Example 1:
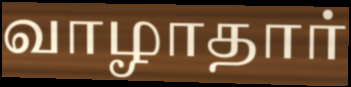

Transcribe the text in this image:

வாழாதார்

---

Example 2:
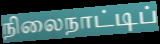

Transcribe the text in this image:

நிலைநாட்டிப்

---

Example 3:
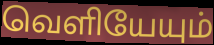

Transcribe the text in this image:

வெளியேயும்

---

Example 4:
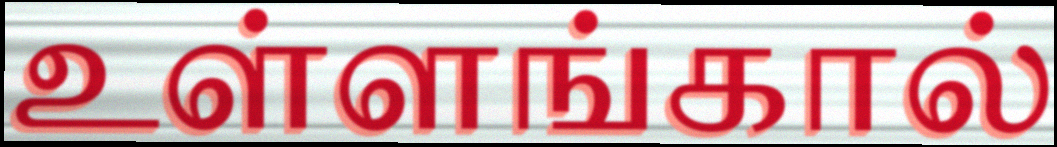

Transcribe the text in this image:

உள்ளங்கால்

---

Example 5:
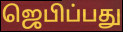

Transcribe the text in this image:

ஜெபிப்பது